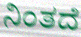
ನಿಂತದೆ